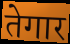
तेगार